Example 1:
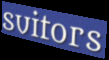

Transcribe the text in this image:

suitors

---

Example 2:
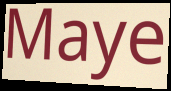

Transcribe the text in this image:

Maye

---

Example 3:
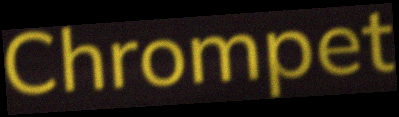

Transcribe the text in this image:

Chrompet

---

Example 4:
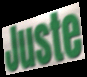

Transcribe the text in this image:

Juste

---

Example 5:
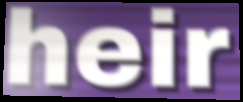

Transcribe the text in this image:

heir